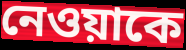
নেওয়াকে